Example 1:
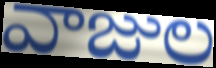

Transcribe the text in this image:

వాజుల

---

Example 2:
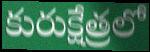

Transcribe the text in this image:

కురుక్షేత్రలో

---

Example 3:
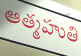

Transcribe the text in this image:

ఆత్మహుతి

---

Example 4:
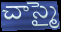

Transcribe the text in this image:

చాస్మై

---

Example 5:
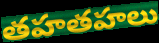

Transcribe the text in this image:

తహతహలు